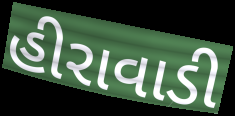
હીરાવાડી